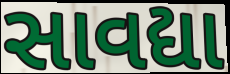
સાવદ્યા